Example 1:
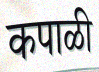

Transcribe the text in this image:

कपाळी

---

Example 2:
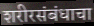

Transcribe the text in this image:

शरीरसंबंधाचा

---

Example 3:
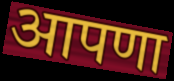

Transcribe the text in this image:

आपणा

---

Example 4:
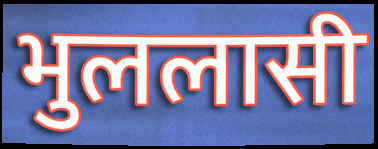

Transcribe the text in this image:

भुललासी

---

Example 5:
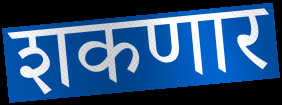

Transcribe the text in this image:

शकणार